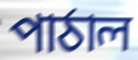
পাঠাল